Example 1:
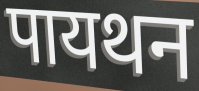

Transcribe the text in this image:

पायथन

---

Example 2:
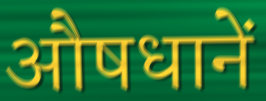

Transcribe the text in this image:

औषधानें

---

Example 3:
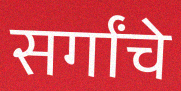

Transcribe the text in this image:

सर्गांचे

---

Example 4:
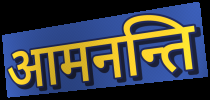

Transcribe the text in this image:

आमनन्ति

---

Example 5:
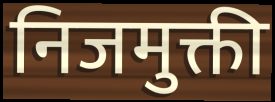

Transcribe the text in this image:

निजमुक्ती